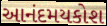
આનંદમયકોશ